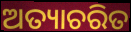
ଅତ୍ୟାଚରିତ